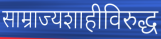
साम्राज्यशाहीविरुद्ध